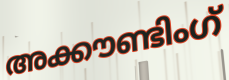
അക്കൗണ്ടിംഗ്